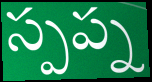
స్పప్న